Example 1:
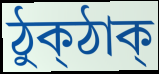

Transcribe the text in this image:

ঠুক্ঠাক্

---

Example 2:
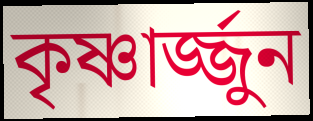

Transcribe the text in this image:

কৃষ্ণার্জ্জুন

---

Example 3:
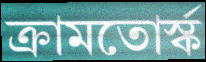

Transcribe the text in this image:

ক্রামতোর্স্ক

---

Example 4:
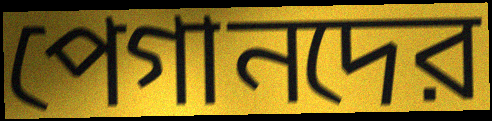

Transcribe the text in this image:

পেগানদের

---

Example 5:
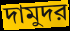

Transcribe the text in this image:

দামুদর